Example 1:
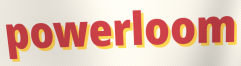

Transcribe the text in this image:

powerloom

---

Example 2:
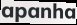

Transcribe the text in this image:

apanha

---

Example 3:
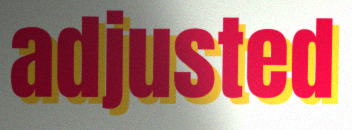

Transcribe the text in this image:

adjusted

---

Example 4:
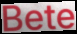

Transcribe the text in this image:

Bete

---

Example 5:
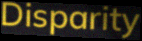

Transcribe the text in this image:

Disparity